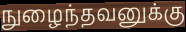
நுழைந்தவனுக்கு